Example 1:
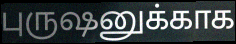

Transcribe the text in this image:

புருஷனுக்காக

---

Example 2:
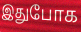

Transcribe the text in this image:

இதுபோக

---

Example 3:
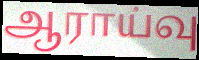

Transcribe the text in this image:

ஆராய்வு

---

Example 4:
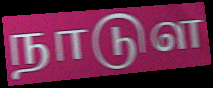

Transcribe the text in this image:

நாடுள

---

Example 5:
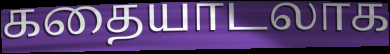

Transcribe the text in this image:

கதையாடலாக